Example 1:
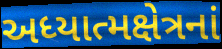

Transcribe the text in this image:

અધ્યાત્મક્ષેત્રનાં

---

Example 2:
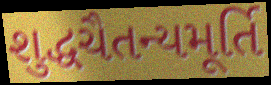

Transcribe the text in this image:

શુદ્ધચૈતન્યમૂર્તિ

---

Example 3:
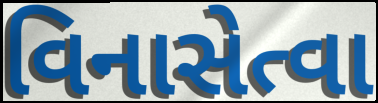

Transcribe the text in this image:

વિનાસેત્વા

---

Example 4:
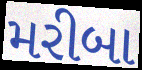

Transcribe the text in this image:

મરીબા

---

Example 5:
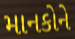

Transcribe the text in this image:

માનકોને